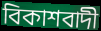
বিকাশবাদী